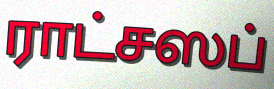
ராட்சஸப்